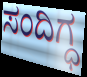
ಸಂದಿಗ್ಧ